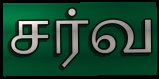
சர்வ